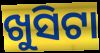
ଖୁସିଟା